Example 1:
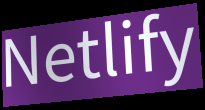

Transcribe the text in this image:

Netlify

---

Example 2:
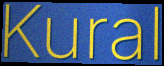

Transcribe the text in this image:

Kural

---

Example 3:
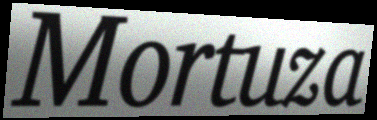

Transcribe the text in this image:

Mortuza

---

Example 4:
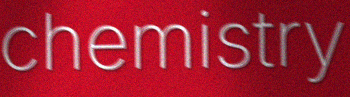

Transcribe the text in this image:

chemistry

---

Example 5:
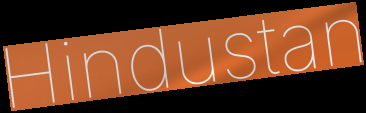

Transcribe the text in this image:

Hindustan